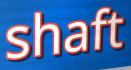
shaft